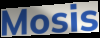
Mosis